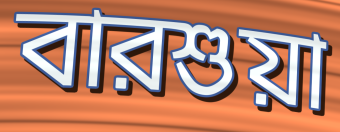
বারশুয়া